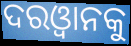
ଦରଓ୍ୱାନକୁ